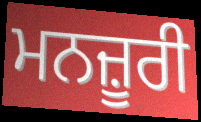
ਮਨਜ਼ੂਰੀ